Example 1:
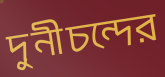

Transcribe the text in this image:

দুনীচন্দের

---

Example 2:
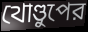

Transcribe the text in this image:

থোণ্ডুপের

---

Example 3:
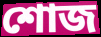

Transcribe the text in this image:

শোজ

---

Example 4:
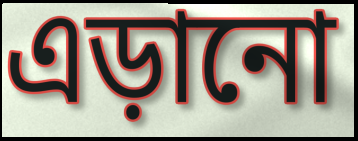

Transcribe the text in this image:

এড়ানো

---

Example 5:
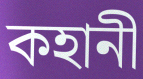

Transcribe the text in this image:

কহানী